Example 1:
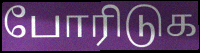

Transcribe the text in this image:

போரிடுக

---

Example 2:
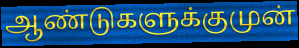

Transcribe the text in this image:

ஆண்டுகளுக்குமுன்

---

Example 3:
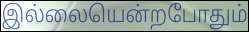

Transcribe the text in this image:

இல்லையென்றபோதும்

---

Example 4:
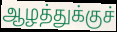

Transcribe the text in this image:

ஆழத்துக்குச்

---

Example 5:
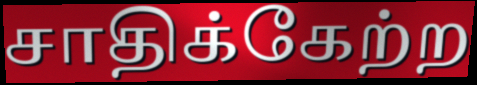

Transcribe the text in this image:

சாதிக்கேற்ற